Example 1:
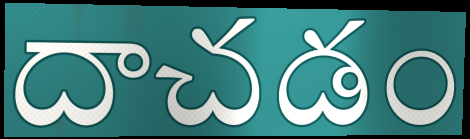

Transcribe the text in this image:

దాచడం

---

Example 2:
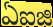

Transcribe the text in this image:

ఏఐజి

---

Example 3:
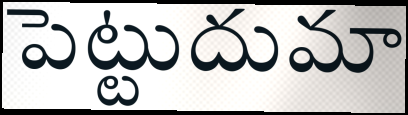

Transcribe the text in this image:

పెట్టుదుమా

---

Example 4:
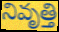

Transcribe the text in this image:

నివృత్తి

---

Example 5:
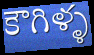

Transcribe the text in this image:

కౌగిళ్ళ